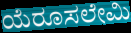
ಯೆರೂಸಲೇಮಿ